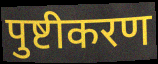
पुष्टीकरण